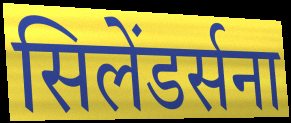
सिलेंडर्सना